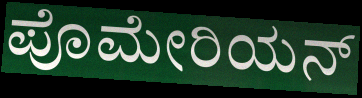
ಪೊಮೇರಿಯನ್